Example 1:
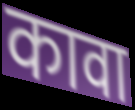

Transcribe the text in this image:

कावा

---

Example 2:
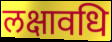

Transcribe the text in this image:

लक्षावधि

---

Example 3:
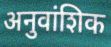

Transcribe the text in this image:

अनुवांशिक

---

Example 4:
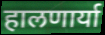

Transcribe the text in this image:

हालणार्या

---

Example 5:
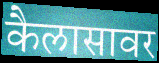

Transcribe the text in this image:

कैलासावर